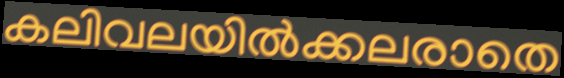
കലിവലയിൽക്കലരാതെ